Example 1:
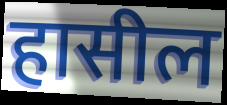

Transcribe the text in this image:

हासील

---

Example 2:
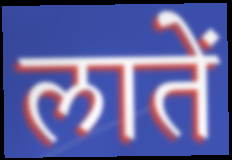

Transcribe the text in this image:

लातें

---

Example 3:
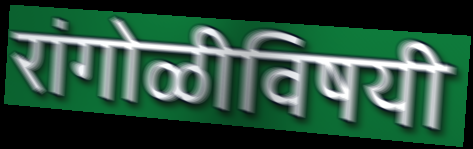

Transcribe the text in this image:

रांगोळीविषयी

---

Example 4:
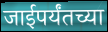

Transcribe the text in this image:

जाईपर्यंतच्या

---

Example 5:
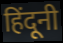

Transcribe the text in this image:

हिंदूनी